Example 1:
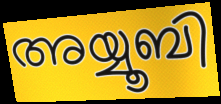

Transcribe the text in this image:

അയ്യൂബി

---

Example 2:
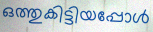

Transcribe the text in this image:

ഒത്തുകിട്ടിയപ്പോൾ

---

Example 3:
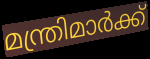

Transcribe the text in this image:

മന്ത്രിമാർക്ക്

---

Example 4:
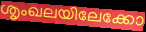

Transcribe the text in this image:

ശൃംഖലയിലേക്കോ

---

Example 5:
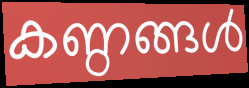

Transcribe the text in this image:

കണ്ഠങ്ങൾ